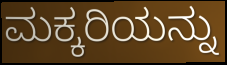
ಮಕ್ಕರಿಯನ್ನು